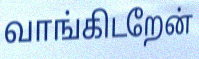
வாங்கிடறேன்